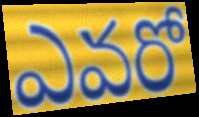
ఎవరో